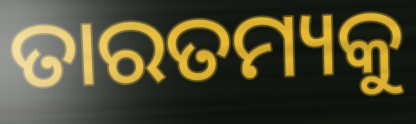
ତାରତମ୍ୟକୁ